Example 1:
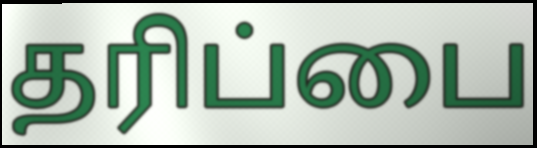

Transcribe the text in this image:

தரிப்பை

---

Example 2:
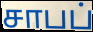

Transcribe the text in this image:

சாபப்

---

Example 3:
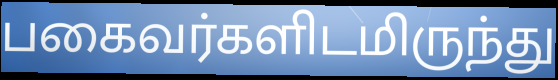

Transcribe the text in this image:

பகைவர்களிடமிருந்து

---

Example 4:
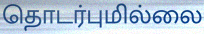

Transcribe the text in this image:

தொடர்புமில்லை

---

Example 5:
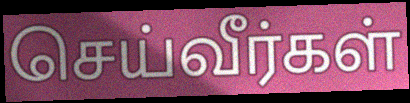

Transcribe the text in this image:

செய்வீர்கள்